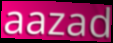
aazad